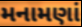
મનામણાં